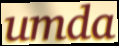
umda